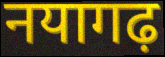
नयागढ़